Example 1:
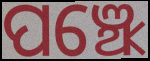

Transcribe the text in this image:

ପଞ୍ଝେ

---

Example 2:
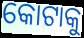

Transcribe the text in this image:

କୋଟାକୁ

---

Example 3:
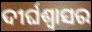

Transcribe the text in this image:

ଦୀର୍ଘଶ୍ବାସର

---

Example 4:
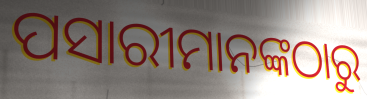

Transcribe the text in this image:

ପସାରୀମାନଙ୍କଠାରୁ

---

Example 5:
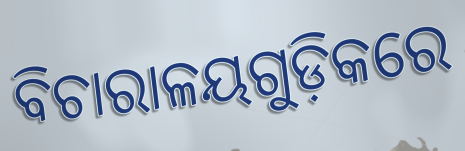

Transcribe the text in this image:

ବିଚାରାଳୟଗୁଡ଼ିକରେ